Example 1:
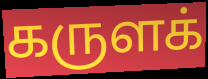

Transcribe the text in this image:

கருளக்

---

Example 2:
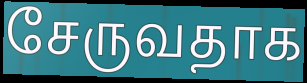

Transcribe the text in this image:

சேருவதாக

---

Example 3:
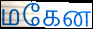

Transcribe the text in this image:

மகேன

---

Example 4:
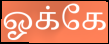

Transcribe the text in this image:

ஓக்கே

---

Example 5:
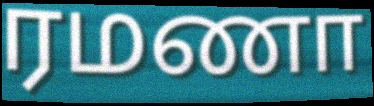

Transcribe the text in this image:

ரமணா